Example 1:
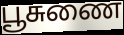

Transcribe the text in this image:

பூசுணை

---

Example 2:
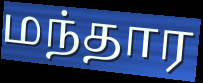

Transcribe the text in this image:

மந்தார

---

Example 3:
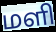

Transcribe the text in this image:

மளி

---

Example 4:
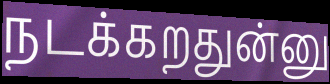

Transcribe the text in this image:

நடக்கறதுன்னு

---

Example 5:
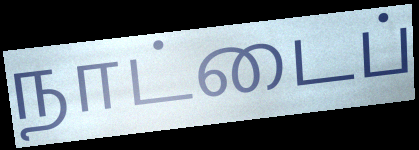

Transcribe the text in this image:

நாட்டைப்